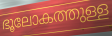
ഭൂലോകത്തുള്ള